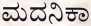
ಮದನಿಕಾ